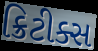
ક્રિટીક્સ